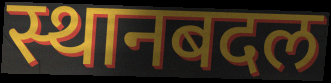
स्थानबदल